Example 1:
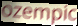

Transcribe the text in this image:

ozempic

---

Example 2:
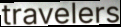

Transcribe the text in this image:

travelers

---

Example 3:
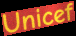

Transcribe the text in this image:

Unicef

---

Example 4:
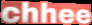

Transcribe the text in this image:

chhee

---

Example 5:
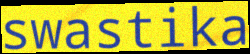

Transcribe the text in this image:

swastika